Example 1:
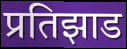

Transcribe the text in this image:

प्रतिझाड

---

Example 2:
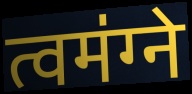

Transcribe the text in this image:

त्वम॑ग्ने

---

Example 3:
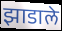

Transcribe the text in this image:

झाडाले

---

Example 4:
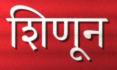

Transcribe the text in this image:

शिणून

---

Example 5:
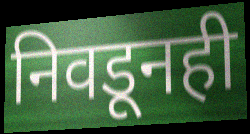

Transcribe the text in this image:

निवडूनही